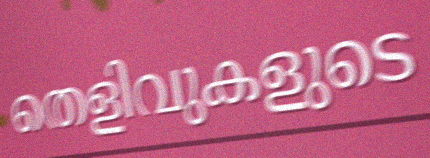
തെളിവുകളുടെ